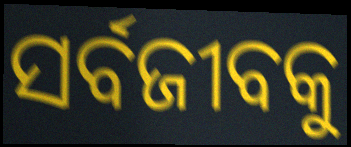
ସର୍ବଜୀବକୁ